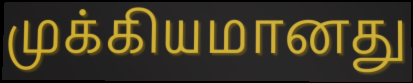
முக்கியமானது